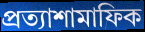
প্রত্যাশামাফিক